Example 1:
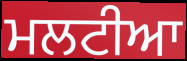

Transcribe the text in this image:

ਮਲਟੀਆ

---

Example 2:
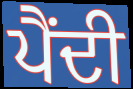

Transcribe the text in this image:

ਪੈਂਦੀ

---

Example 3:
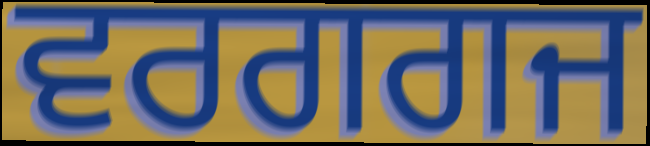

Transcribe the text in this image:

ਵਰਗਗਜ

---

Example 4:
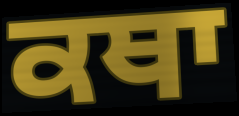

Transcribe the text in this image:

ਕਥਾ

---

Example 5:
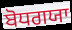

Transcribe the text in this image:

ਬੋਧਗਯਾ